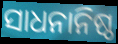
ସାଧନାନିଷ୍ଠ